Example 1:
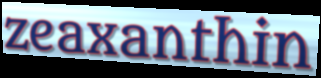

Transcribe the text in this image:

zeaxanthin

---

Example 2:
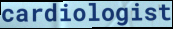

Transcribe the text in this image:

cardiologist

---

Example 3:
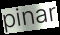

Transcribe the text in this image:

pinar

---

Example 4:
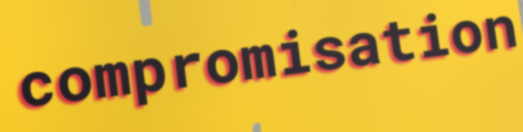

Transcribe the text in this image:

compromisation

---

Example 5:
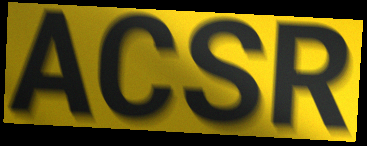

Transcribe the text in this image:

ACSR